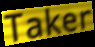
Taker